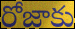
రోజాకు